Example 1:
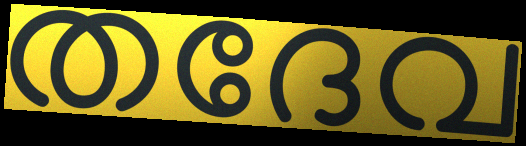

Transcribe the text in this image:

തദേവ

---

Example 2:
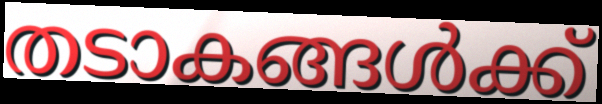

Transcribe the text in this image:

തടാകങ്ങൾക്ക്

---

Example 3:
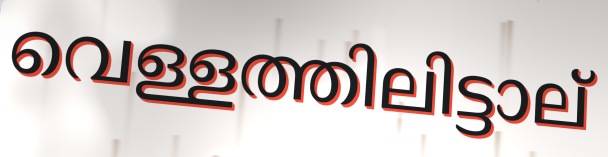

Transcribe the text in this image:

വെള്ളത്തിലിട്ടാല്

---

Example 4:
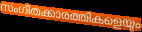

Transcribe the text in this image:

സംഗീതക്കാരത്തികളെയും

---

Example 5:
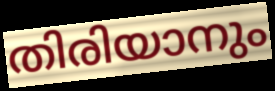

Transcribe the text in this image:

തിരിയാനും